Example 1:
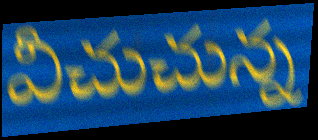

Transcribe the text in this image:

వీచుచున్న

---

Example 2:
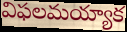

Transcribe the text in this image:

విఫలమయ్యాక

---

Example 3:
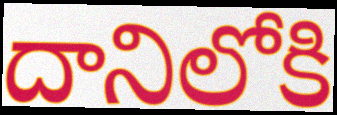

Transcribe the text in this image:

దానిలోకి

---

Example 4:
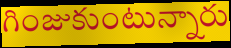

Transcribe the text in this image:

గింజుకుంటున్నారు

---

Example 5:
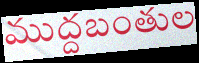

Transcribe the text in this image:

ముద్దబంతుల